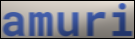
amuri